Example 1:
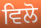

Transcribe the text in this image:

ਵਿਲੋ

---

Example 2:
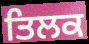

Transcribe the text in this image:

ਤਿਲਕ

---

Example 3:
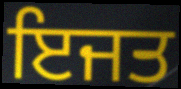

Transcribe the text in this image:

ਇਜਤ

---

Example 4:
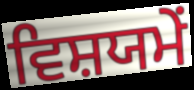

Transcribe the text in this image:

ਵਿਸ਼ਯਮੇਂ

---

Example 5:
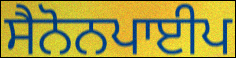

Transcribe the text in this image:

ਸੈਨੋਨਪਾਈਪ